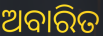
ଅବାରିତ